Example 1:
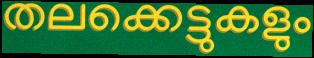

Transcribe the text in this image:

തലക്കെട്ടുകളും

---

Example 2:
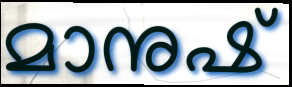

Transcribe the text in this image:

മാനുഷ്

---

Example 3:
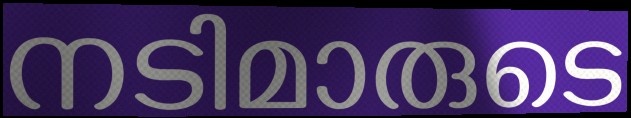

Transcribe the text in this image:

നടിമാരുടെ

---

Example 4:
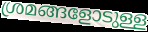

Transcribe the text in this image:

ശ്രമങ്ങളോടുള്ള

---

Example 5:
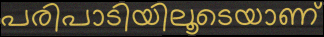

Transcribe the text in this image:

പരിപാടിയിലൂടെയാണ്